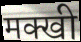
मक्खी